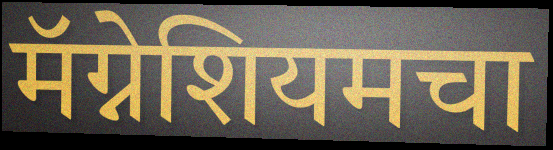
मॅग्नेशियमचा